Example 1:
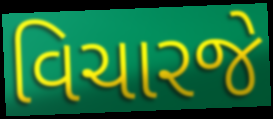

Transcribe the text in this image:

વિચારજે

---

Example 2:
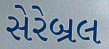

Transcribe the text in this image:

સેરેબ્રલ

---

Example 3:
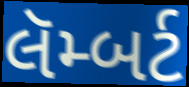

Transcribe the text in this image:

લૅમ્બર્ટ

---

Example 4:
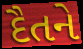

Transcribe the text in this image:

દૈતને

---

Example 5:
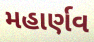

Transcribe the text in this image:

મહાર્ણવ